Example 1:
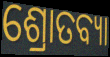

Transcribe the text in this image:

ଶ୍ରୋତବ୍ୟା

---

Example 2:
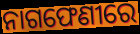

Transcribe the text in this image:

ନାଗଫେଣୀରେ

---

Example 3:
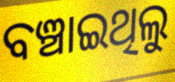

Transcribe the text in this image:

ବଞ୍ଚାଇଥିଲୁ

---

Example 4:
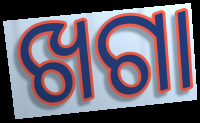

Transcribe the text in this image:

ଖଗା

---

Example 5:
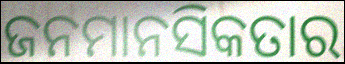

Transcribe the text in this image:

ଜନମାନସିକତାର